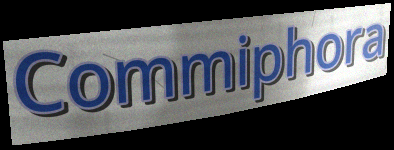
Commiphora